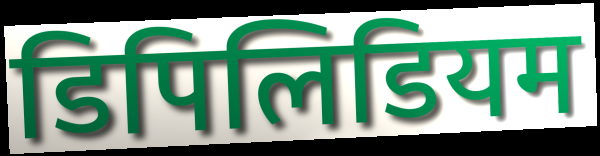
डिपिलिडियम